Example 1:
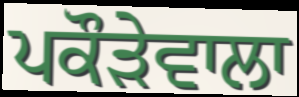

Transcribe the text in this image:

ਪਕੌੜੇਵਾਲਾ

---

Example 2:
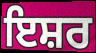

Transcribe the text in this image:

ਇਸ਼ਰ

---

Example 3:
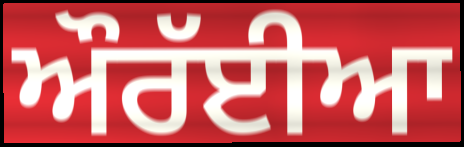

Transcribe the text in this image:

ਔਰੱਈਆ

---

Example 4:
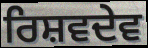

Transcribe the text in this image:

ਰਿਸ਼ਵਦੇਵ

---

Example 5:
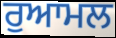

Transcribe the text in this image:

ਰੁਆਮਲ